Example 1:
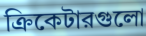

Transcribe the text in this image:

ক্রিকেটারগুলো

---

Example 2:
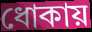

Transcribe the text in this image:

ধোকায়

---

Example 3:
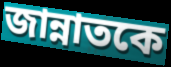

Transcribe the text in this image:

জান্নাতকে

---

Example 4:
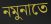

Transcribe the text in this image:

নমুনাতে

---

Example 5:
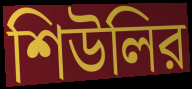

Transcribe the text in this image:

শিউলির